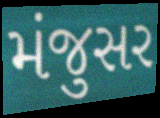
મંજુસર